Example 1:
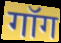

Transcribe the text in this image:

गॉग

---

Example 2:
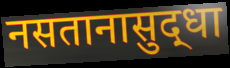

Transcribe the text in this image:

नसतानासुद्धा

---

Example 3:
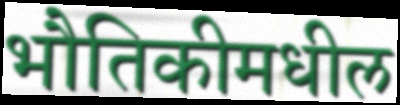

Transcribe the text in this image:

भौतिकीमधील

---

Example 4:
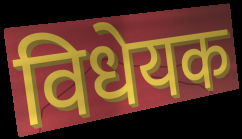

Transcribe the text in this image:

विधेयक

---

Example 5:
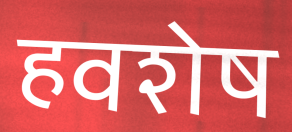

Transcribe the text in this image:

हवशेष